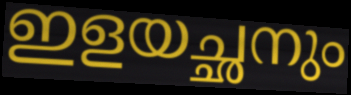
ഇളയച്ഛനും